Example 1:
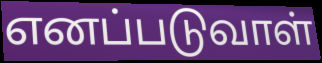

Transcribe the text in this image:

எனப்படுவாள்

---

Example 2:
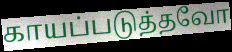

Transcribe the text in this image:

காயப்படுத்தவோ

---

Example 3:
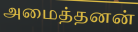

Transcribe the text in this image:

அமைத்தனன்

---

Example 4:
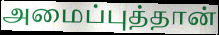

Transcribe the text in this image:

அமைப்புத்தான்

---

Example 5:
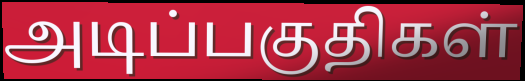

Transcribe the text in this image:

அடிப்பகுதிகள்